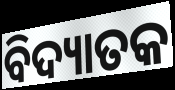
ବିଦ୍ୟାତକ